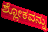
ಶ್ಲೋಕವನ್ನು